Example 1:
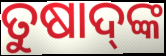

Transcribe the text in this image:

ତୁଷାଦ୍‌ଙ୍କ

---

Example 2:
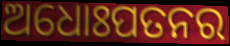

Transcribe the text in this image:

ଅଧୋଃପତନର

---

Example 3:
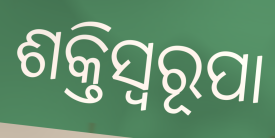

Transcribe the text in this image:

ଶକ୍ତିସ୍ବରୂପା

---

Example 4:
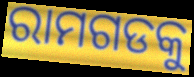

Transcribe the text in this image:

ରାମଗଡକୁ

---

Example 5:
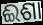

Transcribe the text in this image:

ଈଶା